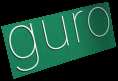
guro